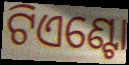
ଟିଏଣ୍ଟୋ